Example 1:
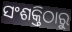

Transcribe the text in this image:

ସଂଶକ୍ତିଠାରୁ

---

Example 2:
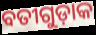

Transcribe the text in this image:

ବତୀଗୁଡ଼ାକ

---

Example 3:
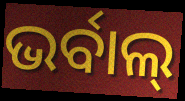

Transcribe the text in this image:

ଭର୍ବାଲ୍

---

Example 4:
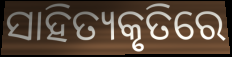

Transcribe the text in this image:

ସାହିତ୍ୟକୃତିରେ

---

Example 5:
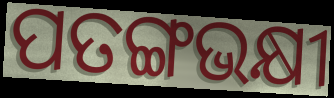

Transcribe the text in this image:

ପତଙ୍ଗଭକ୍ଷୀ